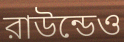
রাউন্ডেও